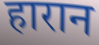
हारान